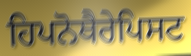
ਹਿਪਨੋਥੈਰੇਪਿਸਟ